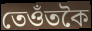
তেওঁতকৈ